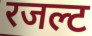
रजल्ट